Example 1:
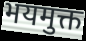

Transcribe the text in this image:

भयमुक्त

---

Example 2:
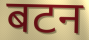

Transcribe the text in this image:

बटन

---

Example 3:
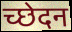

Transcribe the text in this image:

च्छेदन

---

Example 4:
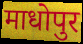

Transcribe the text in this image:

माधोपुर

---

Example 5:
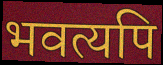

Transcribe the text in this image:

भवत्यपि